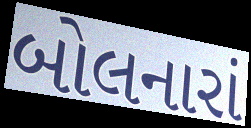
બોલનારાં